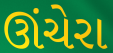
ઊંચેરા